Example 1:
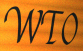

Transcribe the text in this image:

WTO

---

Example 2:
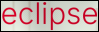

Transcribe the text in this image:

eclipse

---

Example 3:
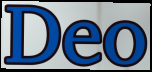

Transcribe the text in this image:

Deo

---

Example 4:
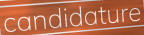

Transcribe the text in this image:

candidature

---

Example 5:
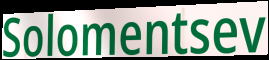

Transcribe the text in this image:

Solomentsev